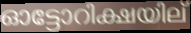
ഓട്ടോറിക്ഷയില്